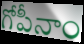
గోపీనాం